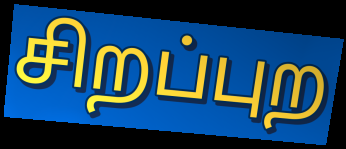
சிறப்புற